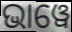
ଭାୱେ